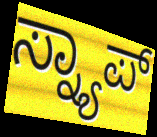
ಸ್ನ್ಯಾಪ್